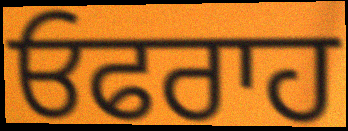
ਓਫਰਾਹ